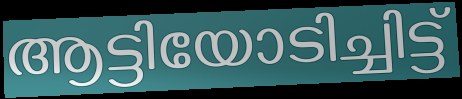
ആട്ടിയോടിച്ചിട്ട്